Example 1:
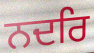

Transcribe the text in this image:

ਨਦਰਿ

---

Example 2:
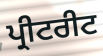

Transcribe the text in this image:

ਪ੍ਰੀਟਰੀਟ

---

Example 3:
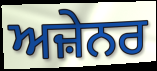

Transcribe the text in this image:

ਅਜ਼ੇਨਰ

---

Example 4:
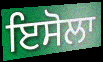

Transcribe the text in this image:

ਇਸੋਲਾ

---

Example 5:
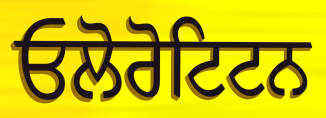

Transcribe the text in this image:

ਓਲੋਰੋਟਿਟਨ